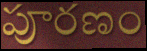
పూరణం